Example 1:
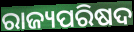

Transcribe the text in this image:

ରାଜ୍ୟପରିଷଦ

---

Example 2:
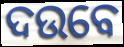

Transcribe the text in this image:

ଦଉବେ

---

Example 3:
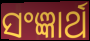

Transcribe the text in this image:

ସଂଜ୍ଞାର୍ଥ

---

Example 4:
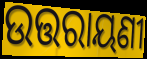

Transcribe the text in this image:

ଉତ୍ତରାୟଣୀ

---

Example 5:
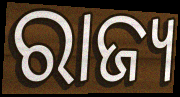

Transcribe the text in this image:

ରାଜ୍ୟ